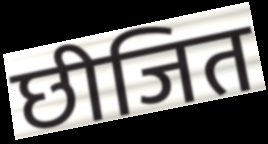
छीजित